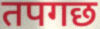
तपगछ